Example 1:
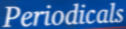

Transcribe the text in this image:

Periodicals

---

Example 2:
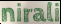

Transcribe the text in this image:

nirali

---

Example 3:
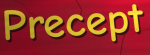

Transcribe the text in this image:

Precept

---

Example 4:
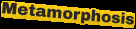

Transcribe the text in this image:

Metamorphosis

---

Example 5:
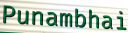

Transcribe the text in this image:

Punambhai